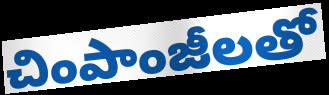
చింపాంజీలతో